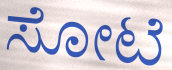
ಸೋಟೆ